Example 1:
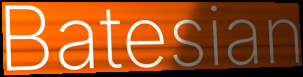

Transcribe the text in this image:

Batesian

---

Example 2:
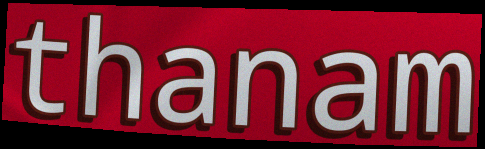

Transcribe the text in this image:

thanam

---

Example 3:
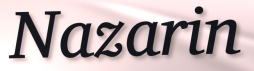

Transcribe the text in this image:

Nazarin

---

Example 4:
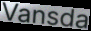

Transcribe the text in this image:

Vansda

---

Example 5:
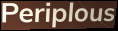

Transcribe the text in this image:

Periplous